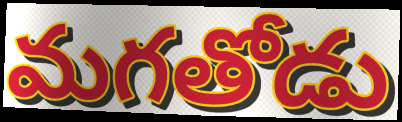
మగతోడు